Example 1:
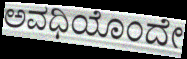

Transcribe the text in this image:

ಅವಧಿಯೊಂದೇ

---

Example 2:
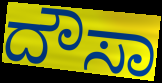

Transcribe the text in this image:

ದೌಸಾ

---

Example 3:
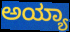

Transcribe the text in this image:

ಅಯ್ಯಾ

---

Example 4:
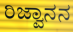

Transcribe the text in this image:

ರಿಜ್ವಾನನ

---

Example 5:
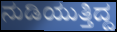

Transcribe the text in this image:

ನುಡಿಯುತ್ತಿದ್ದ